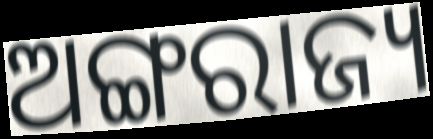
ଅଙ୍ଗରାଜ୍ୟ